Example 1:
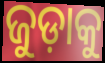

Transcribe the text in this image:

ଜୁଡ଼ାକୁ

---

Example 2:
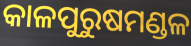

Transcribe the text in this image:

କାଳପୁରୁଷମଣ୍ଡଳ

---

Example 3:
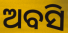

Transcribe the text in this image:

ଅବସି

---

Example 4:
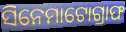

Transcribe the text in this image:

ସିନେମାଟୋଗ୍ରାଫ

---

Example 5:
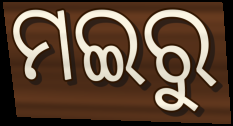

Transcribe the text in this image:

ମଇରୁ